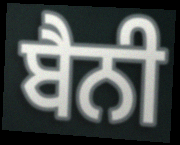
ਬੈਨੀ